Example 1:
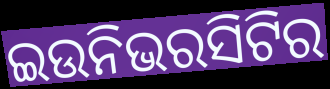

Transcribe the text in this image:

ଇଉନିଭରସିଟିର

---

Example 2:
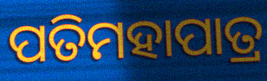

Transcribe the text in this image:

ପତିମହାପାତ୍ର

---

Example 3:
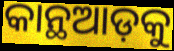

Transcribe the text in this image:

କାନ୍ଥଆଡ଼କୁ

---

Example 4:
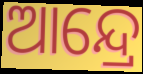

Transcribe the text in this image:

ଆନ୍ଦ୍ରେ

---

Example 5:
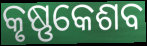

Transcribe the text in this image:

କୃଷ୍ଣକେଶବ